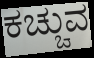
ಕಚ್ಚುವ